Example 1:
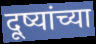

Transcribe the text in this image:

दूष्यांच्या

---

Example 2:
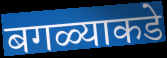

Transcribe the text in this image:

बगळ्याकडे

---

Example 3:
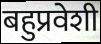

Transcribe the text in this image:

बहुप्रवेशी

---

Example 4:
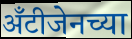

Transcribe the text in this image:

अँटीजेनच्या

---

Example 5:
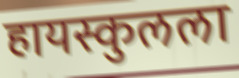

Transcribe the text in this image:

हायस्कुलला